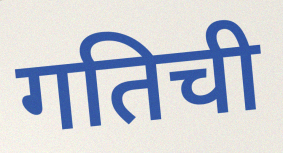
गतिची